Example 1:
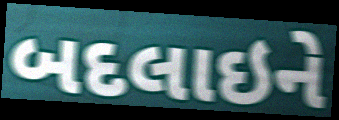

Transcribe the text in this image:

બદલાઇને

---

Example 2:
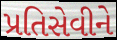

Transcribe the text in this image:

પ્રતિસેવીને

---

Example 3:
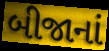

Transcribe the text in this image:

બીજાનાં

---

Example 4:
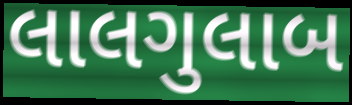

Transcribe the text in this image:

લાલગુલાબ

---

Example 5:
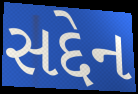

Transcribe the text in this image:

સદ્દેન